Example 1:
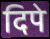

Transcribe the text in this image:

दिपे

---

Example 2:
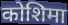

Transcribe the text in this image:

कोशिमा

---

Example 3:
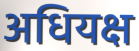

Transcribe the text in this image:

अधियक्ष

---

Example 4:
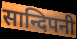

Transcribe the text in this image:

सान्दिपनी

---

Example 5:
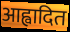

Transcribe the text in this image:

आह्वादित